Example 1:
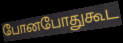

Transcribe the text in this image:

போனபோதுகூட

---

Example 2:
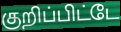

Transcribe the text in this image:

குறிப்பிட்டே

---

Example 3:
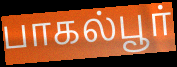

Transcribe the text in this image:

பாகல்பூர்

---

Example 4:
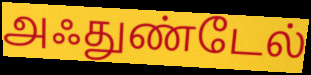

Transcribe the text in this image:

அஃதுண்டேல்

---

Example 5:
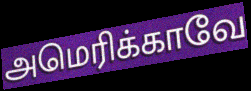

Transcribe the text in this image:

அமெரிக்காவே